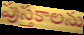
పుస్తకాలను